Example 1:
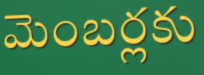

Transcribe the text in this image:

మెంబర్లకు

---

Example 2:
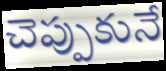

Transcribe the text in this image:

చెప్పుకునే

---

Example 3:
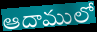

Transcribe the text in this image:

ఆదాములో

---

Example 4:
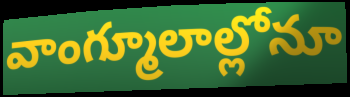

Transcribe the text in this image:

వాంగ్మూలాల్లోనూ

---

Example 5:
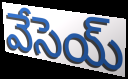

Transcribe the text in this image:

వేసెయ్